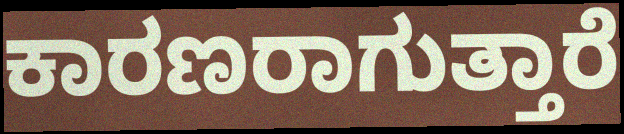
ಕಾರಣರಾಗುತ್ತಾರೆ